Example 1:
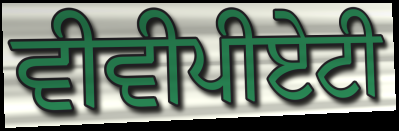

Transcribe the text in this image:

ਵੀਵੀਪੀਏਟੀ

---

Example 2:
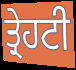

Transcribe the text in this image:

ਤ੍ਰੇਹਟੀ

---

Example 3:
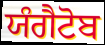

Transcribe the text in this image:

ਯੰਗੈਟੋਬ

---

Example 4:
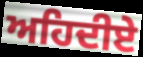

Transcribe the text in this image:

ਅਹਿਦੀਏ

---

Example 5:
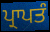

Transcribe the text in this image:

ਪ੍ਰਾਪਤੰ